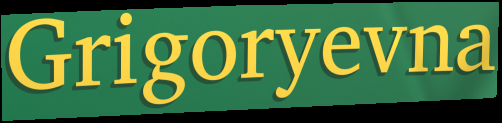
Grigoryevna